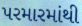
પરમારમાંથી